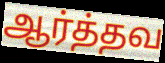
ஆர்த்தவ